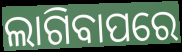
ଲାଗିବାପରେ